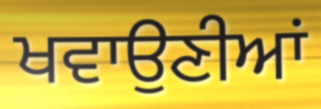
ਖਵਾਉਣੀਆਂ